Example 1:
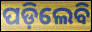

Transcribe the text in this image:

ପଡ଼ିଲେବି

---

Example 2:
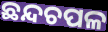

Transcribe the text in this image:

ଛନ୍ଦଚପଳ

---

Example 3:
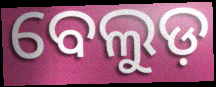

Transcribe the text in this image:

ବେଲୁଡ଼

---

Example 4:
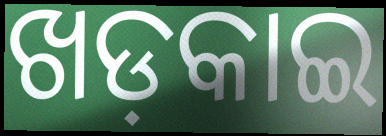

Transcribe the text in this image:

ଖଡ଼କାଇ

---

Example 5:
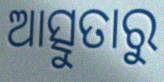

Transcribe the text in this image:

ଆତ୍ସୁତାରୁ